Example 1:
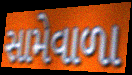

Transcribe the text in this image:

સામેવાળા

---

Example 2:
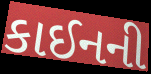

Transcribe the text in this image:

કાઈનની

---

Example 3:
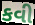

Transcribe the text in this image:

કવી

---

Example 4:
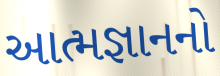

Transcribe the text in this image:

આત્મજ્ઞાનનો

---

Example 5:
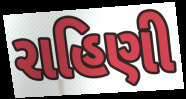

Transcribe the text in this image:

રાહિણી